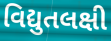
વિદ્યુતલક્ષી